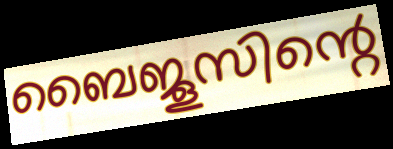
ബൈജൂസിന്റെ